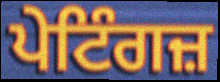
ਪੇਟਿੰਗਜ਼